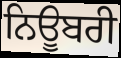
ਨਿਊਬਰੀ